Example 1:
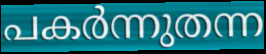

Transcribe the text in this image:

പകർന്നുതന്ന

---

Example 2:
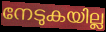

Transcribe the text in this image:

നേടുകയില്ല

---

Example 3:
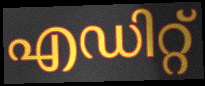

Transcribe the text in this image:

എഡിറ്റ്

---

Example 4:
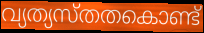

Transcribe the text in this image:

വ്യത്യസ്തതകൊണ്ട്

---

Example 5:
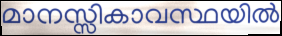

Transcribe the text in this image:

മാനസ്സികാവസ്ഥയിൽ